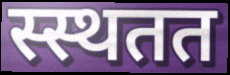
स्स्थतत